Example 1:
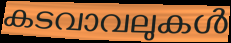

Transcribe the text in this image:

കടവാവലുകൾ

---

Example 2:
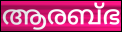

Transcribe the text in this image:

ആരബ്ഭ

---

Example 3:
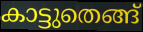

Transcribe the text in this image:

കാട്ടുതെങ്ങ്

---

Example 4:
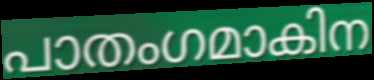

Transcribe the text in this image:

പാതംഗമാകിന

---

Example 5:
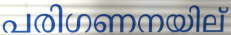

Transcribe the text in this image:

പരിഗണനയില്